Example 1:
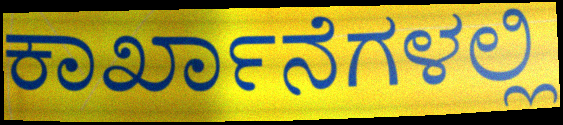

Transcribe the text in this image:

ಕಾರ್ಖಾನೆಗಳಲ್ಲಿ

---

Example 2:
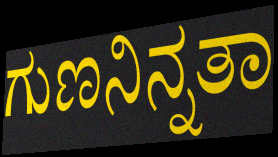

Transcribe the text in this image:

ಗುಣನಿನ್ನತಾ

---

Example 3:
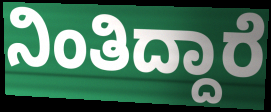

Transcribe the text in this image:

ನಿಂತಿದ್ದಾರೆ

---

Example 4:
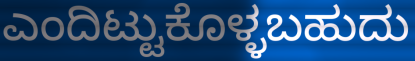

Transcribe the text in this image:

ಎಂದಿಟ್ಟುಕೊಳ್ಳಬಹುದು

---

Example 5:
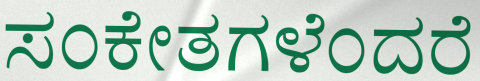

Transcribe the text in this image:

ಸಂಕೇತಗಳೆಂದರೆ